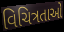
વિચિત્રતાઓ